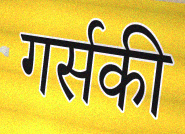
गर्सकी